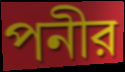
পনীর